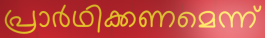
പ്രാർഥിക്കണമെന്ന്